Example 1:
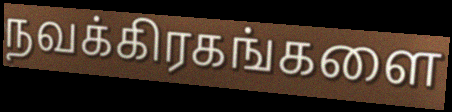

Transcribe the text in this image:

நவக்கிரகங்களை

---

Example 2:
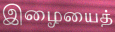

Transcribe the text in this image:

இழையைத்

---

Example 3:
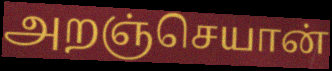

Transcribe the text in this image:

அறஞ்செயான்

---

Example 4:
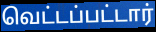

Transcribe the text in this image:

வெட்டப்பட்டார்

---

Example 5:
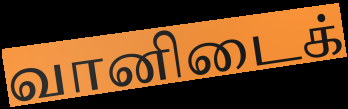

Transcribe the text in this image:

வானிடைக்